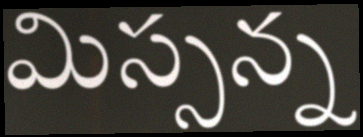
మిస్సన్న